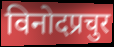
विनोदप्रचुर